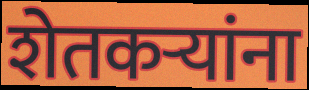
शेतकर्‍यांना